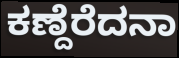
ಕಣ್ದೆರೆದನಾ